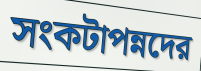
সংকটাপন্নদের